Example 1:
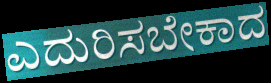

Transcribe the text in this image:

ಎದುರಿಸಬೇಕಾದ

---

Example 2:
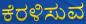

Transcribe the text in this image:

ಕೆರಳಿಸುವ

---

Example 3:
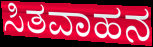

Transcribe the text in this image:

ಸಿತವಾಹನ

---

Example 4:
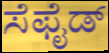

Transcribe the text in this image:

ಸೆಫೈಡ್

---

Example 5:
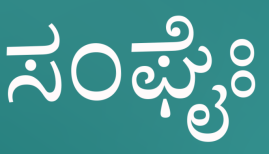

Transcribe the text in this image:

ಸಂಘೈಃ